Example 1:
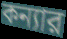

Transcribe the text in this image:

কন্যার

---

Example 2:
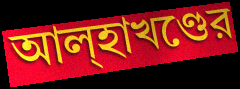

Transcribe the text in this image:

আল্হাখণ্ডের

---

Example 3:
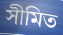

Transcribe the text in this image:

সীমিত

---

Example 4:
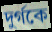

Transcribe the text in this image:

দুর্গকে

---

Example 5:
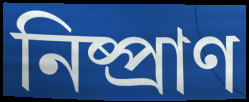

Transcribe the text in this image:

নিষ্প্রাণ